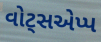
વોટ્સએપ્પ